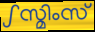
ഽസ്മിംസ്